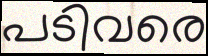
പടിവരെ